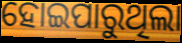
ହୋଇପାରୁଥିଲା